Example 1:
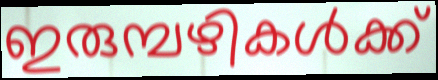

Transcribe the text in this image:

ഇരുമ്പഴികൾക്ക്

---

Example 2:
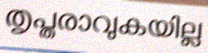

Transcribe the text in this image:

തൃപ്തരാവുകയില്ല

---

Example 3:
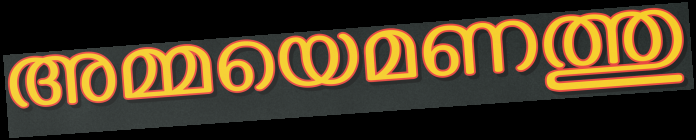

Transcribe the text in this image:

അമ്മയെമണത്തു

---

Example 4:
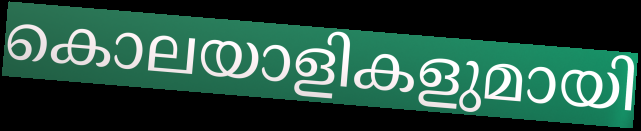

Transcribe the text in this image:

കൊലയാളികളുമായി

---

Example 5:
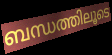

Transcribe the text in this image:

ബന്ധത്തിലൂടെ